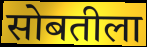
सोबतीला